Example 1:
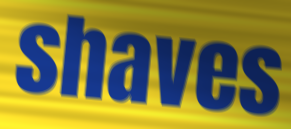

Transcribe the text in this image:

shaves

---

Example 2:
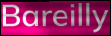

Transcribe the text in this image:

Bareilly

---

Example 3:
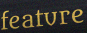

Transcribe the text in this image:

feature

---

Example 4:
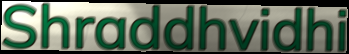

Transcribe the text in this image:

Shraddhvidhi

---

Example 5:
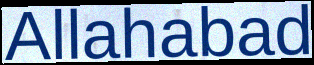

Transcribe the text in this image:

Allahabad